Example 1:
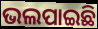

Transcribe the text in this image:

ଭଲପାଇଛି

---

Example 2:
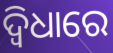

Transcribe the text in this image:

ଦ୍ଵିଧାରେ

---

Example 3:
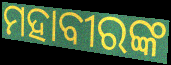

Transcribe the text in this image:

ମହାବୀରଙ୍କ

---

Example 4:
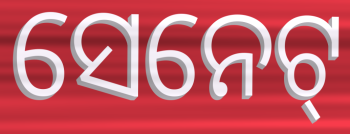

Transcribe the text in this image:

ସେନେଟ୍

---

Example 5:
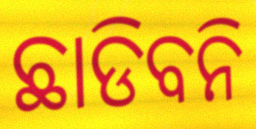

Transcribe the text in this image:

ଛାଡିବନି